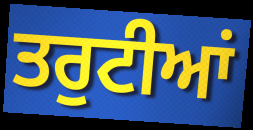
ਤਰੁਟੀਆਂ